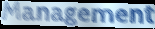
Management